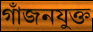
গাঁজনযুক্ত